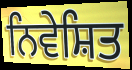
ਨਿਵੇਸ਼ਿਤ